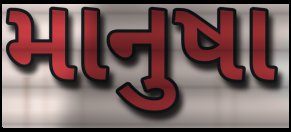
માનુષા